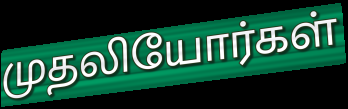
முதலியோர்கள்